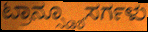
ಟ್ರಾನ್ಸ್ಡ್ಯೂಸರ್ಗಳು